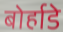
बोर्हाडे